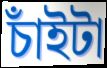
চাঁইটা